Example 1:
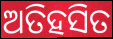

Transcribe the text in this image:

ଅତିହସିତ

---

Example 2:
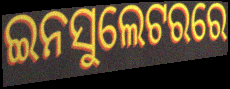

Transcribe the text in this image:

ଇନସୁଲେଟରରେ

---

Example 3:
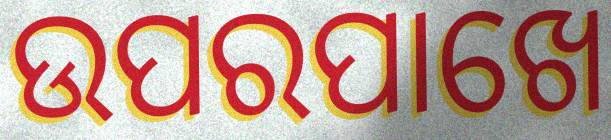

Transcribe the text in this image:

ଉପରପାଖେ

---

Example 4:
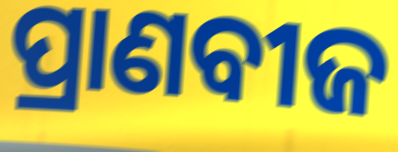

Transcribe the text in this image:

ପ୍ରାଣବୀଜ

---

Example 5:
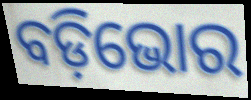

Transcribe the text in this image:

ବଡ଼ିଭୋର